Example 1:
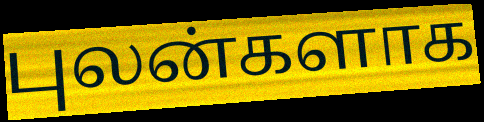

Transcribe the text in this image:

புலன்களாக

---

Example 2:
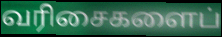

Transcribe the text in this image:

வரிசைகளைப்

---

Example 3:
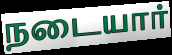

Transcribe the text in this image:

நடையார்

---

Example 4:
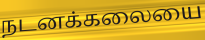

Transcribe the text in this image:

நடனக்கலையை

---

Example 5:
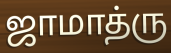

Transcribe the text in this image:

ஜாமாத்ரு